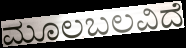
ಮೂಲಬಲವಿದೆ